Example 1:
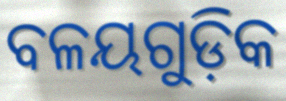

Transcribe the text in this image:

ବଳୟଗୁଡ଼ିକ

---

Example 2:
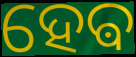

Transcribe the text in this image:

ହେଵ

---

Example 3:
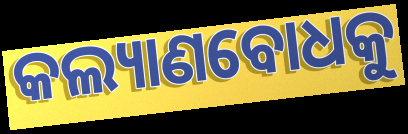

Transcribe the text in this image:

କଲ୍ୟାଣବୋଧକୁ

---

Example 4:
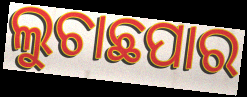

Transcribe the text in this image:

ଲୁଚାଛପାର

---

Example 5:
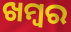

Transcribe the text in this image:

ଖମ୍ୱର